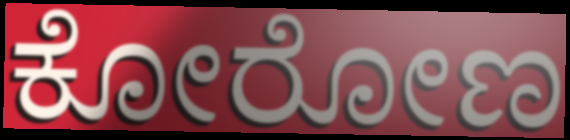
ಕೋರೋಣ